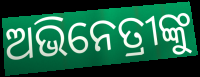
ଅଭିନେତ୍ରୀଙ୍କୁ